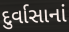
દુર્વાસાનાં